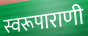
स्वरूपाराणी